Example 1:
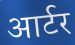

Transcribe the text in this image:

आर्टर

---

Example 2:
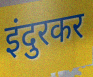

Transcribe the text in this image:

इंदुरकर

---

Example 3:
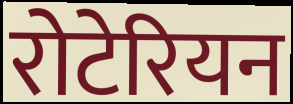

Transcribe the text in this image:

रोटेरियन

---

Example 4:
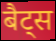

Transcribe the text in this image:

बैट्स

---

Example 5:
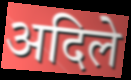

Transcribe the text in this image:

अदिले